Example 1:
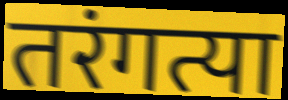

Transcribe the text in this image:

तरंगत्या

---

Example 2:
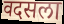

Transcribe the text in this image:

वदसला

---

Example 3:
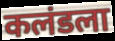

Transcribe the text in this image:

कलंडला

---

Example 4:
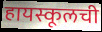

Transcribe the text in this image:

हायस्कूलची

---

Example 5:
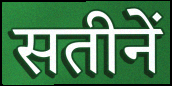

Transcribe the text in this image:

सतीनें